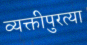
व्यक्तीपुरत्या